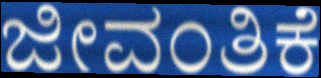
ಜೀವಂತಿಕೆ